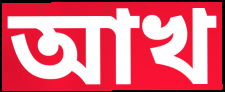
আখ